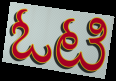
ಓಟಿ